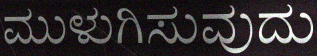
ಮುಳುಗಿಸುವುದು